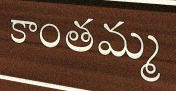
కాంతమ్మ